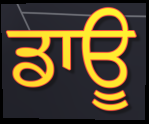
ਡਾਊ